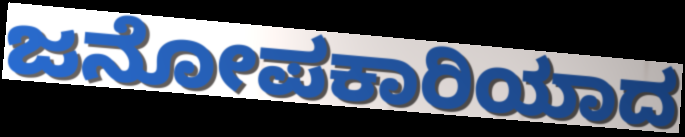
ಜನೋಪಕಾರಿಯಾದ